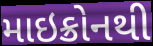
માઇક્રોનથી